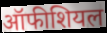
ऑफीशियल